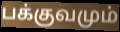
பக்குவமும்